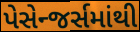
પેસેન્જર્સમાંથી